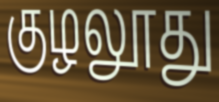
குழலூது